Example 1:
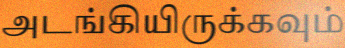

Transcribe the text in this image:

அடங்கியிருக்கவும்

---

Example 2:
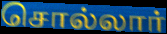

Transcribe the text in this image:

சொல்லார்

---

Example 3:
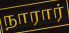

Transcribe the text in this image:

நாரார்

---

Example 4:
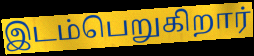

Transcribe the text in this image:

இடம்பெறுகிறார்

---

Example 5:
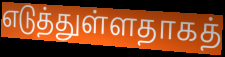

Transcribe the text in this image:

எடுத்துள்ளதாகத்